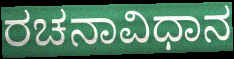
ರಚನಾವಿಧಾನ